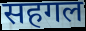
सहगल